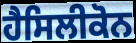
ਹੈਸਿਲੀਕੋਨ